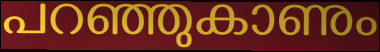
പറഞ്ഞുകാണും